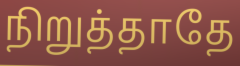
நிறுத்தாதே